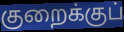
குறைக்குப்